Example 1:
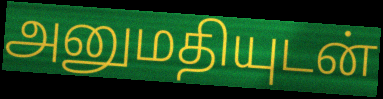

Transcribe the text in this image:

அனுமதியுடன்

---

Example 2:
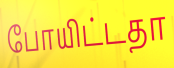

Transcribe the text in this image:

போயிட்டதா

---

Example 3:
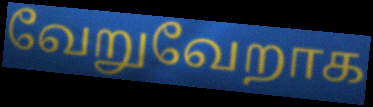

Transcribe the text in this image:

வேறுவேறாக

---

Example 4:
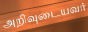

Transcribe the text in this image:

அறிவுடையவர்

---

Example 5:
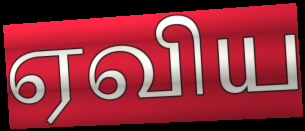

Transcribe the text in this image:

ஏவிய